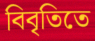
বিবৃতিতে